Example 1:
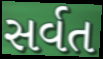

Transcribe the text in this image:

સર્વત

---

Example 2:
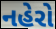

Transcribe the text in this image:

નહેરો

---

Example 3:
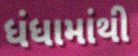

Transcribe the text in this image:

ધંધામાંથી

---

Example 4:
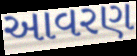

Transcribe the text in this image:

આવરણ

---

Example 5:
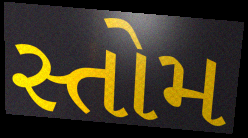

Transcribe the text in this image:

સ્તોમ